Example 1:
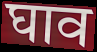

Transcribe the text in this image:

घाव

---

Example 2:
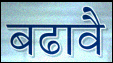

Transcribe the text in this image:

बढावै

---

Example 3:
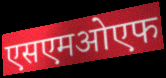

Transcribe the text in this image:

एसएमओएफ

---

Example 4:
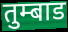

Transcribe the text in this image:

तुम्बाड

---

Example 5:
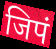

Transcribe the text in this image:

जिपं